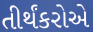
તીર્થંકરોએ